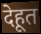
देहूत